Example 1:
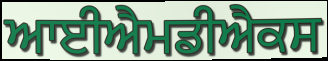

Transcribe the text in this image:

ਆਈਐਮਡੀਐਕਸ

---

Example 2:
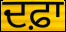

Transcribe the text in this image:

ਦਫ਼ਾ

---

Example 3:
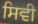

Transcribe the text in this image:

ਸਿਵੀ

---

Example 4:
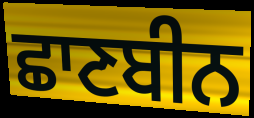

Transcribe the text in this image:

ਛਾਣਬੀਨ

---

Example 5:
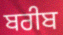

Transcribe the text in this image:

ਬਰੀਬ